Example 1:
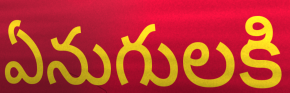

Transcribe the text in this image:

ఏనుగులకి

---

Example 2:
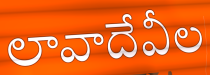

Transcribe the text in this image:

లావాదేవీల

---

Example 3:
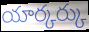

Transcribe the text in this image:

యార్కర్కు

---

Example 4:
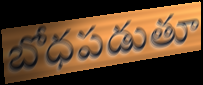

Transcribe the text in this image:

బోధపడుతూ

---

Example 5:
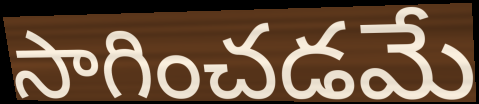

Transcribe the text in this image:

సాగించడమే